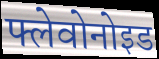
फ्लेवोनोइड